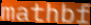
mathbf